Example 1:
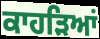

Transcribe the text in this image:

ਕਾਹੜਿਆਂ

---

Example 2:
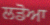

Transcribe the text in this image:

ਲਡੋਆ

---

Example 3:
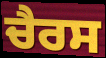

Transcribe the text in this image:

ਚੈਰਸ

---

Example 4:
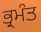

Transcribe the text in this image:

ਭ੍ਰਮੰਤ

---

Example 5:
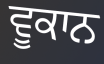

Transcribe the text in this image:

ਵੂਕਾਨ